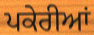
ਪਕੇਰੀਆਂ